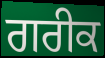
ਗਰੀਕ